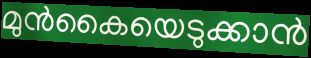
മുൻകൈയെടുക്കാൻ